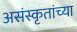
असंस्कृतांच्या